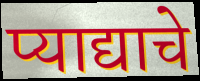
प्याद्याचे